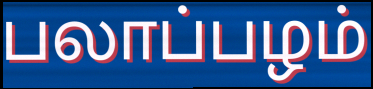
பலாப்பழம்